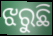
ଝରୁଛି